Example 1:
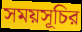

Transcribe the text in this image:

সময়সূচির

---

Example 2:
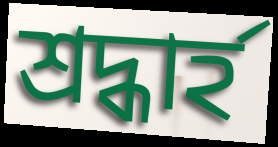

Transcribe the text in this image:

শ্রদ্ধার্হ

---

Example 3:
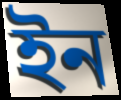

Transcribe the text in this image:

ইন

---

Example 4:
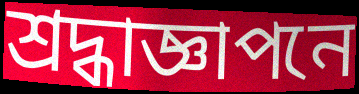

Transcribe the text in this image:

শ্রদ্ধাজ্ঞাপনে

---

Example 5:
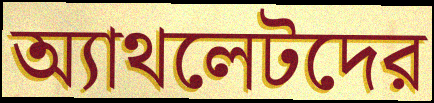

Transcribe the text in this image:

অ্যাথলেটদের